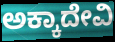
ಅಕ್ಕಾದೇವಿ